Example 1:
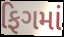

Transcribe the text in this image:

ફિગમાં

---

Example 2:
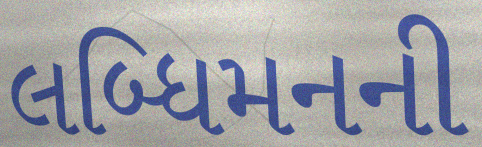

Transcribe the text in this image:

લબ્ધિમનની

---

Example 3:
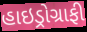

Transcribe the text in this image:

હાઇડ્રોગ્રાફી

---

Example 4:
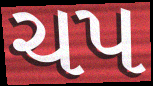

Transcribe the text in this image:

ચપ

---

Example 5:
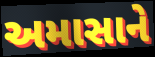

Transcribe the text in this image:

અમાસાને